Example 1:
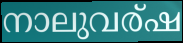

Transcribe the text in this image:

നാലുവര്ഷ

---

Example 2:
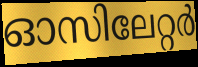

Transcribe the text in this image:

ഓസിലേറ്റർ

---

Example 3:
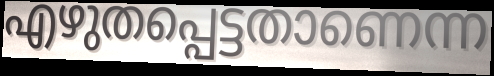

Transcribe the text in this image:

എഴുതപ്പെട്ടതാണെന്ന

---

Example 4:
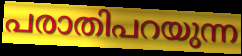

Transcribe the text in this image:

പരാതിപറയുന്ന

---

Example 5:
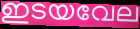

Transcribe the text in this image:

ഇടയവേല